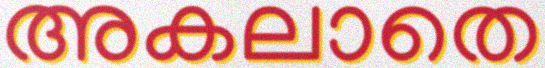
അകലാതെ